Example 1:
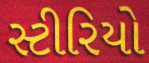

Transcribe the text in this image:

સ્ટીરિયો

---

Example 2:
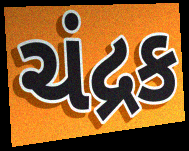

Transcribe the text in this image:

ચંદ્રક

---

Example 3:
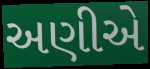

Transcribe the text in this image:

અણીએ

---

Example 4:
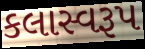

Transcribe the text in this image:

કલાસ્વરૂપ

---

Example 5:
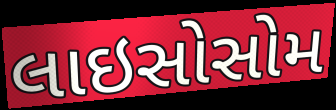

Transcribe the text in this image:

લાઇસોસોમ